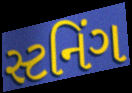
સ્ટનિંગ